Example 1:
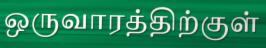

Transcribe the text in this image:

ஒருவாரத்திற்குள்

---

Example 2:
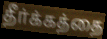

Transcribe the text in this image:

தீர்க்கத்தை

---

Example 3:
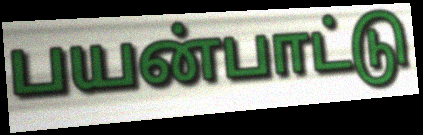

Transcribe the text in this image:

பயன்பாட்டு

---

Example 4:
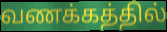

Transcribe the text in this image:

வணக்கத்தில்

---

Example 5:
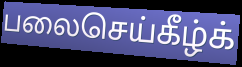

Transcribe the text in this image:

பலைசெய்கீழ்க்